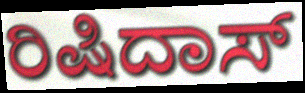
ರಿಷಿದಾಸ್